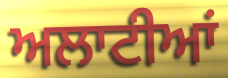
ਅਲਾਟੀਆਂ